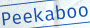
Peekaboo